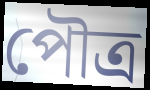
পৌত্র